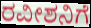
ರವೀಶನಿಗೆ